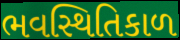
ભવસ્થિતિકાળ